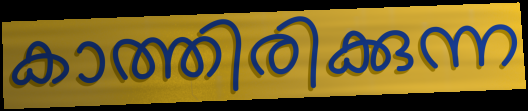
കാത്തിരിക്കുന്ന